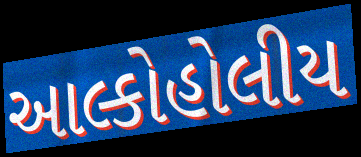
આલ્કોહોલીય